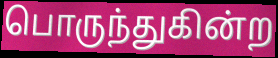
பொருந்துகின்ற